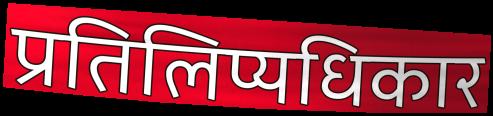
प्रतिलिप्यधिकार